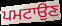
ਪਮਟਾਉਣ